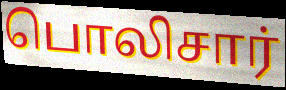
பொலிசார்